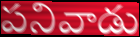
పనివాడు